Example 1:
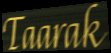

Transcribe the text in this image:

Taarak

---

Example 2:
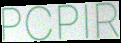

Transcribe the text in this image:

PCPIR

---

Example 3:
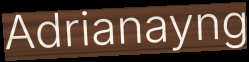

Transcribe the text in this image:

Adrianayng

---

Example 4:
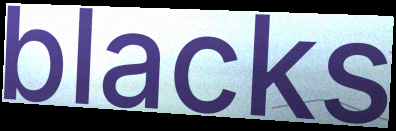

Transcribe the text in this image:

blacks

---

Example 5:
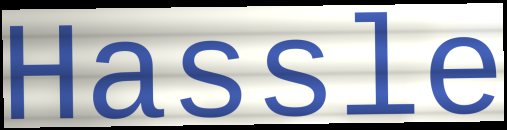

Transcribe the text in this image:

Hassle